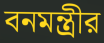
বনমন্ত্রীর